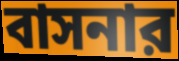
বাসনার